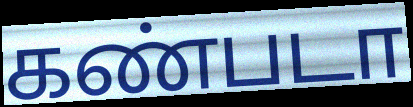
கண்படா